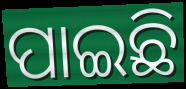
ପାଇଛି